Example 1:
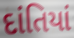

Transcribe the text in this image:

દાંતિયાં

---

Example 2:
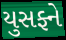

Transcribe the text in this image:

યુસફ્ને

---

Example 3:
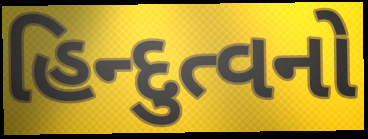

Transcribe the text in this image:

હિન્દુત્વનો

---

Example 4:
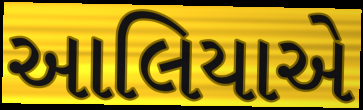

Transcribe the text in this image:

આલિયાએ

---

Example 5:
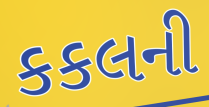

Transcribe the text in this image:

કકલની